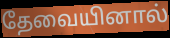
தேவையினால்